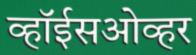
व्हॉईसओव्हर